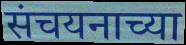
संचयनाच्या